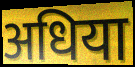
अधिया